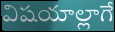
విషయాల్లాగే